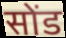
सोंड